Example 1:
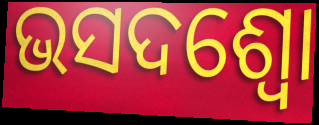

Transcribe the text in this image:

ଭସଦଶ୍ଵୋ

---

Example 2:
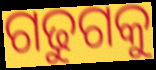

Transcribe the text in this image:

ଗଢୁଗକୁ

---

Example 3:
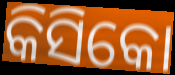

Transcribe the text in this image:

କିସିକୋ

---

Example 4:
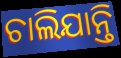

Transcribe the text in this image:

ଚାଲିଯାନ୍ତି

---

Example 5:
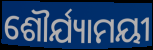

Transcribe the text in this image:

ଶୌର୍ଯ୍ୟାମୟୀ